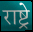
राष्ट्रे